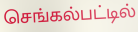
செங்கல்பட்டில்